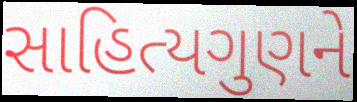
સાહિત્યગુણને